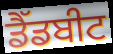
ਡੈੱਡਬੀਟ